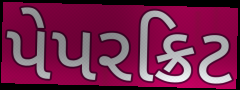
પેપરક્રિટ